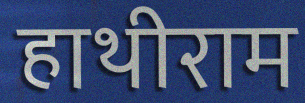
हाथीराम